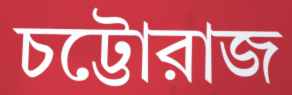
চট্টোরাজ